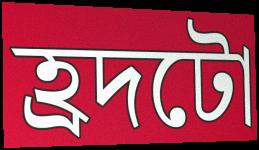
হ্ৰদটো